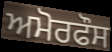
ਅਮੋਰਫੌਸ